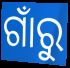
ଗାଁରୁ